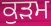
ਕੁੜਮ